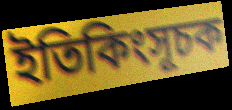
ইতিকিংসূচক